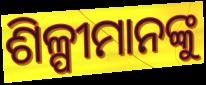
ଶିଳ୍ପୀମାନଙ୍କୁ